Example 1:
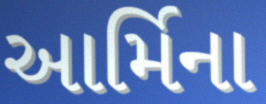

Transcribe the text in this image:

આર્મિના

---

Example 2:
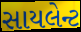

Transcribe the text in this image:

સાયલેન્ટ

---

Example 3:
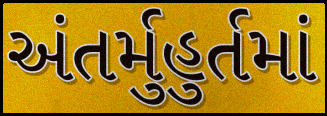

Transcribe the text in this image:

અંતર્મુહુર્તમાં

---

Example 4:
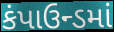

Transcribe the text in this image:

કંપાઉન્ડમાં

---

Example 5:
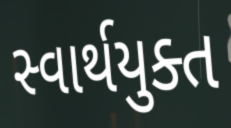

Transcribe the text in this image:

સ્વાર્થયુક્ત